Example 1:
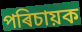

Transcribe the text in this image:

পৰিচায়ক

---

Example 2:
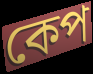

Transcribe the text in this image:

কেপ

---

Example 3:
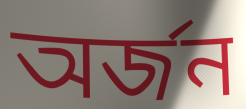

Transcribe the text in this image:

অৰ্জন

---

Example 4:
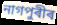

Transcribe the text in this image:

নাগপুৰীৰ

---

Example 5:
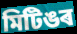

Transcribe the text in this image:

মিটিঙৰ